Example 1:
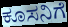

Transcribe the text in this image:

ಕೂಸನಿಗೆ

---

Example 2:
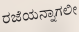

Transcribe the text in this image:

ರಜೆಯನ್ನಾಗಲೀ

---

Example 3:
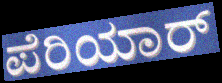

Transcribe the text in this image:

ಪೆರಿಯಾರ್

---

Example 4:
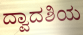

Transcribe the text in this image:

ದ್ವಾದಶಿಯ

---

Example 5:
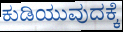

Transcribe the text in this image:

ಕುಡಿಯುವುದಕ್ಕೆ